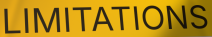
LIMITATIONS